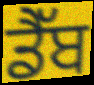
ਡੈੱਬ